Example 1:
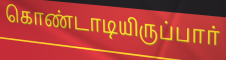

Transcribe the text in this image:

கொண்டாடியிருப்பார்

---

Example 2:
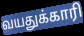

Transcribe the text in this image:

வயதுக்காரி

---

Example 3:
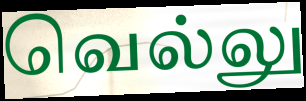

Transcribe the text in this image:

வெல்லு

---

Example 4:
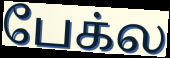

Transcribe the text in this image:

பேக்ல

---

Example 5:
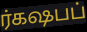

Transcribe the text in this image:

ர்கஷபப்